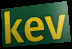
kev